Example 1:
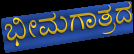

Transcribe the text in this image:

ಭೀಮಗಾತ್ರದ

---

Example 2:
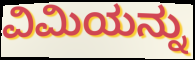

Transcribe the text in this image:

ವಿಮಿಯನ್ನು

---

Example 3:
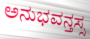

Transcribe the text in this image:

ಅನುಭವನ್ತಸ್ಸ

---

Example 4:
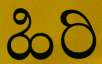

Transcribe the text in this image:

ಹಿರಿ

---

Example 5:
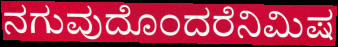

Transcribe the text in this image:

ನಗುವುದೊಂದರೆನಿಮಿಷ